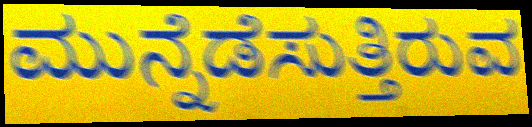
ಮುನ್ನೆಡೆಸುತ್ತಿರುವ